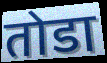
तोडा